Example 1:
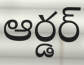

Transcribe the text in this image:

ఆర్డర్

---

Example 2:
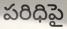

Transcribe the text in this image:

పరిధిపై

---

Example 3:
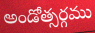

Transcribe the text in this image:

అండోత్సర్గము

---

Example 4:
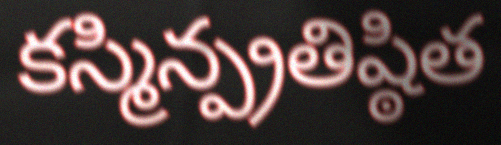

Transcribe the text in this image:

కస్మిన్ప్రతిష్ఠిత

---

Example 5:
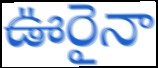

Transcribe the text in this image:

ఊరైనా